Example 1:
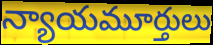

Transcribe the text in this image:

న్యాయమూర్తులు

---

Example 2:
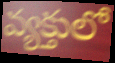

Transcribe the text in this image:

వ్యక్తులో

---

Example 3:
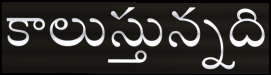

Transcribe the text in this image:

కాలుస్తున్నది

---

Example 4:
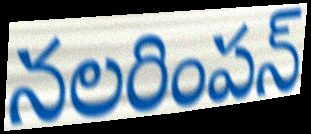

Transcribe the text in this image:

నలరింపన్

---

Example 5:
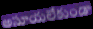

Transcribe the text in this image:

అసూయలేకుండా